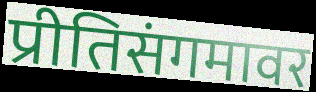
प्रीतिसंगमावर